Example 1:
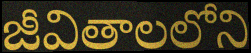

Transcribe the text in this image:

జీవితాలలోని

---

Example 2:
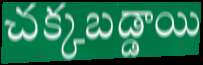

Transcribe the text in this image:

చక్కబడ్డాయి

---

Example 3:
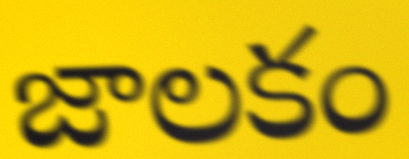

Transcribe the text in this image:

జాలకం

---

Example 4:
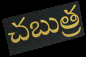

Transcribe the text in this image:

చబుత్ర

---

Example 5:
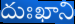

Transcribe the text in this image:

దుఃఖాని